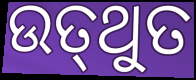
ଉତ୍‌ଥୁତ